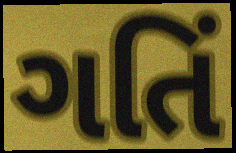
ગતિં